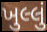
ખુલ્લું